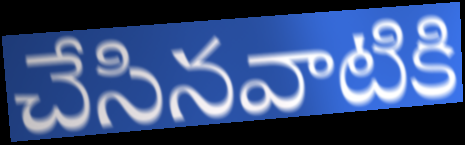
చేసినవాటికి